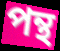
পন্থ